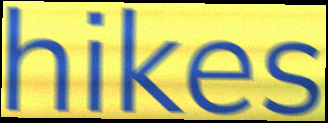
hikes